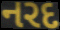
નરદ